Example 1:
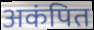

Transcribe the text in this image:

अकंपित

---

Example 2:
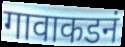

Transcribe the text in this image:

गावाकडनं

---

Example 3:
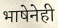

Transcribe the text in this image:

भाषेनेही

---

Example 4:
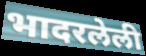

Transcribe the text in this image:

भादरलेली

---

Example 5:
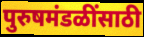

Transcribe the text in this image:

पुरुषमंडळींसाठी